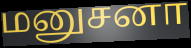
மனுசனா